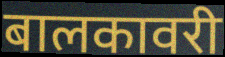
बालकावरी